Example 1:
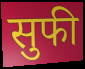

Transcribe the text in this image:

सुफी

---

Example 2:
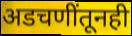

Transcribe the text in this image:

अडचणींतूनही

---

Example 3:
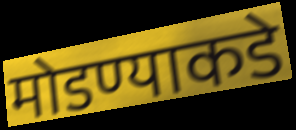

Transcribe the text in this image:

मोडण्याकडे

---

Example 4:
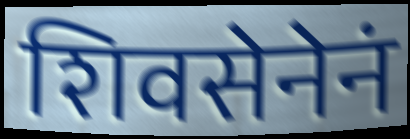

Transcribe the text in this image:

शिवसेनेनं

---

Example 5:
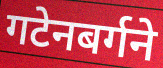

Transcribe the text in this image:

गटेनबर्गने